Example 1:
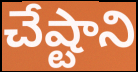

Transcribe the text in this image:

చేష్టాని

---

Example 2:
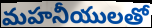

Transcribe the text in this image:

మహనీయులతో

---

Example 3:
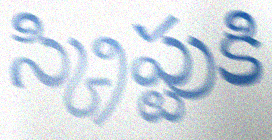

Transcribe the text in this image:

స్క్రిప్టుకి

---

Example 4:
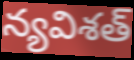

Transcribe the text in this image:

న్యవిశత్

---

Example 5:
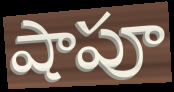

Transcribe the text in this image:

షాపూ